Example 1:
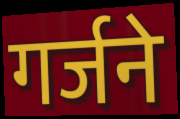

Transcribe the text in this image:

गर्जने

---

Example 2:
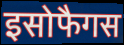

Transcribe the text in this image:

इसोफैगस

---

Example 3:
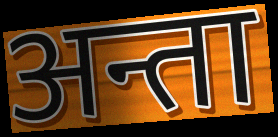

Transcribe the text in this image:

अन्ता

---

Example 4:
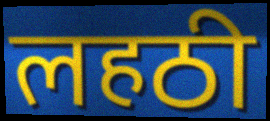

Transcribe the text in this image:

लहठी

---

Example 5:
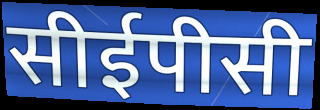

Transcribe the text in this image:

सीईपीसी